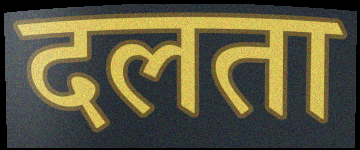
दलता